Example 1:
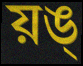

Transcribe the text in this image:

য়ঙ্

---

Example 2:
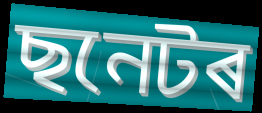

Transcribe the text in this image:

ছনেটৰ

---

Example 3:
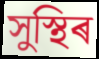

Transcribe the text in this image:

সুস্থিৰ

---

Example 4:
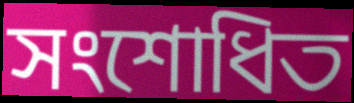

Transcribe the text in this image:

সংশোধিত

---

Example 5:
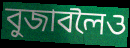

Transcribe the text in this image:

বুজাবলৈও